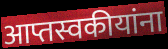
आप्तस्वकीयांना